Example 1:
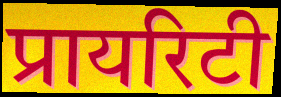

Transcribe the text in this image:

प्रायरिटी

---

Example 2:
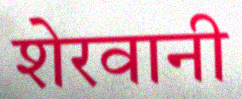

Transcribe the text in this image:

शेरवानी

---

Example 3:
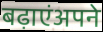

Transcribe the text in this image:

बढ़ाएंअपने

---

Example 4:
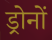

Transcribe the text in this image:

ड्रोनों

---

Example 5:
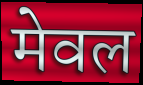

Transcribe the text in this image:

मेवल